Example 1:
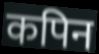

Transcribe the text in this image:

कपिन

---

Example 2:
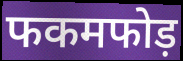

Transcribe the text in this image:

फकमफोड़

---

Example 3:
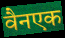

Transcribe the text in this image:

वैनएक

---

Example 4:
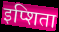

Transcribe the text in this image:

इप्शिता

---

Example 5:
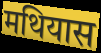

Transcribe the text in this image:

मथियास